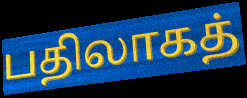
பதிலாகத்